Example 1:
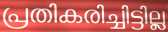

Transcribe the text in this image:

പ്രതികരിച്ചിട്ടില്ല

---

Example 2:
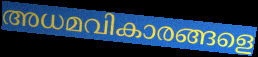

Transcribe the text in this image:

അധമവികാരങ്ങളെ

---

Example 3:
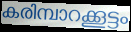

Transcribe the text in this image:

കരിമ്പാറക്കൂട്ടം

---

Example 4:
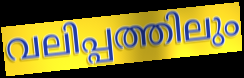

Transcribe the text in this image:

വലിപ്പത്തിലും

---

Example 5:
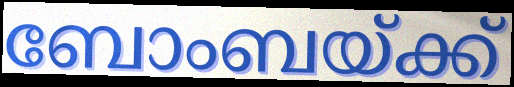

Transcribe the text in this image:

ബോംബയ്ക്ക്